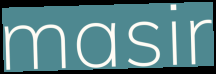
masir